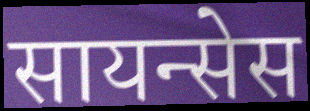
सायन्सेस